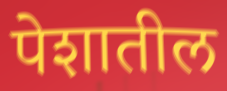
पेशातील